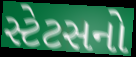
સ્ટેટસનો